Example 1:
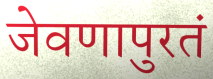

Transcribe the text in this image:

जेवणापुरतं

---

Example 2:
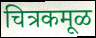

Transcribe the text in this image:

चित्रकमूळ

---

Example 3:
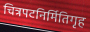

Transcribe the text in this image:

चित्रपटनिर्मितिगृह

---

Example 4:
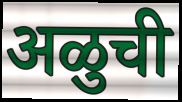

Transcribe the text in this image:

अळुची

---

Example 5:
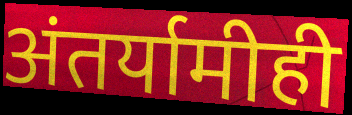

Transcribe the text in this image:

अंतर्यामीही